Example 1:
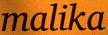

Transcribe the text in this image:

malika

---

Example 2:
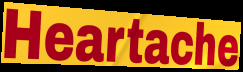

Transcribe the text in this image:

Heartache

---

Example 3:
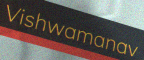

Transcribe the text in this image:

Vishwamanav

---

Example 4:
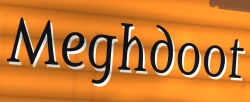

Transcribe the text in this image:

Meghdoot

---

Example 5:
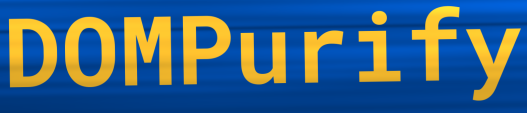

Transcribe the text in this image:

DOMPurify